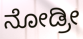
ನೋಡ್ರೀ